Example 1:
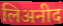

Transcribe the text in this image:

लिअनीद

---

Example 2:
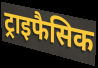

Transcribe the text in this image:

ट्राइफैसिक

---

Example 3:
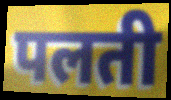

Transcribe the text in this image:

पलती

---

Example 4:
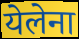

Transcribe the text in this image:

येलेना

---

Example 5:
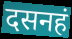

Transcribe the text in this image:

दसनहं